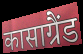
कासाग्रैंड